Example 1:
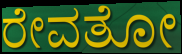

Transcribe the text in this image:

ರೇವತೋ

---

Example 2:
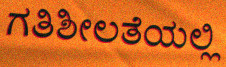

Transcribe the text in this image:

ಗತಿಶೀಲತೆಯಲ್ಲಿ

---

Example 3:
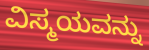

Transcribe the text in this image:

ವಿಸ್ಮಯವನ್ನು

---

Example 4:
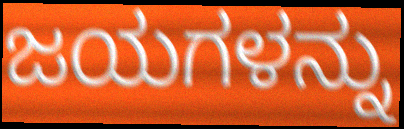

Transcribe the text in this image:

ಜಯಗಳನ್ನು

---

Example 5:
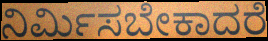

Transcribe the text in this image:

ನಿರ್ಮಿಸಬೇಕಾದರೆ